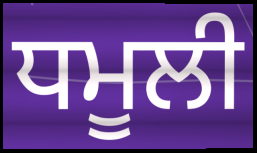
ਧਮੂਲੀ